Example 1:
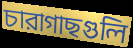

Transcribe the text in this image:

চারাগাছগুলি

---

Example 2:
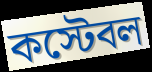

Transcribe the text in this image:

কস্টেবল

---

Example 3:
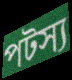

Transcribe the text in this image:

পটস্য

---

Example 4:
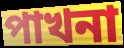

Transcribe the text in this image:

পাখনা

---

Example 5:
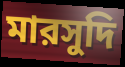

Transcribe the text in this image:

মারসুদি